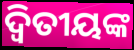
ଦ୍ଵିତୀୟଙ୍କ